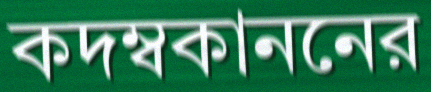
কদম্বকাননের